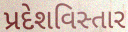
પ્રદેશવિસ્તાર